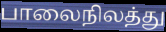
பாலைநிலத்து